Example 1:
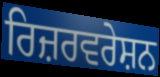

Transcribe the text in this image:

ਰਿਜ਼ਰਵਰੇਸ਼ਨ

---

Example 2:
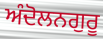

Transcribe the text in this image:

ਅੰਦੋਲਨਗੁਰੂ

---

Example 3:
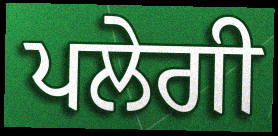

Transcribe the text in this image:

ਪਲੇਗੀ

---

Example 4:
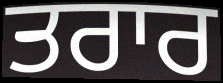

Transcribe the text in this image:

ਤਰਾਰ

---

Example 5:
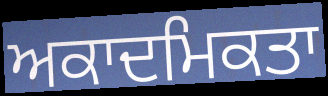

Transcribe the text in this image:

ਅਕਾਦਮਿਕਤਾ